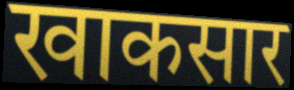
खाकसार